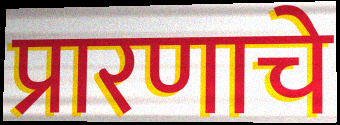
प्रारणाचे